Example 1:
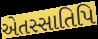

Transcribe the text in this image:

એતસ્સાતિપિ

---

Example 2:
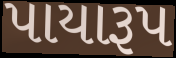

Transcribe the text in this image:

પાયારૂપ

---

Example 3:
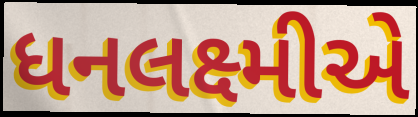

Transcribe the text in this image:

ધનલક્ષ્મીએ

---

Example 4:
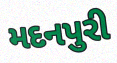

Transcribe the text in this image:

મદનપુરી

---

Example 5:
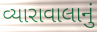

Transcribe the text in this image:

વ્યારાવાલાનું